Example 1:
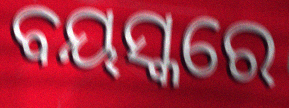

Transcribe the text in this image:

ବୟସ୍କରେ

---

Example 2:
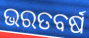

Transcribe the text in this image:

ଭରତବର୍ଷ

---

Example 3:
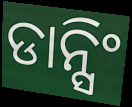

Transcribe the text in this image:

ଡାନ୍ସିଂ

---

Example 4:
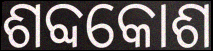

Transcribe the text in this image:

ଶବ୍ଦକୋଶ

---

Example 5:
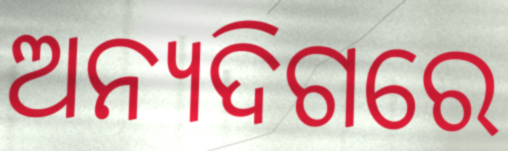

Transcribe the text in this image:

ଅନ୍ୟଦିଗରେ